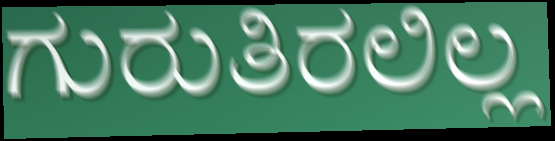
ಗುರುತಿರಲಿಲ್ಲ